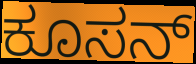
ಕೂಸನ್